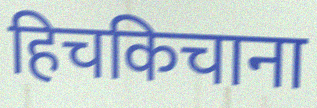
हिचकिचाना